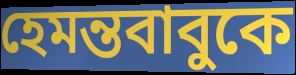
হেমন্তবাবুকে